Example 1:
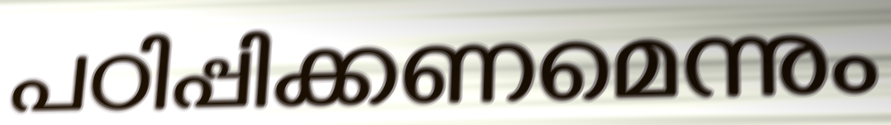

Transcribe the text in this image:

പഠിപ്പിക്കണമെന്നും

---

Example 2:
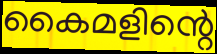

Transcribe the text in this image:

കൈമളിന്റെ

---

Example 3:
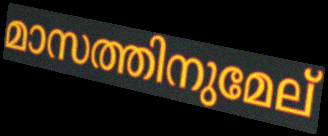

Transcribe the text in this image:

മാസത്തിനുമേല്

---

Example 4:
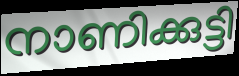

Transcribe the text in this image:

നാണിക്കുട്ടി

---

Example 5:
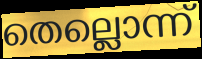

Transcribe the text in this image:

തെല്ലൊന്ന്